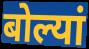
बोल्यां